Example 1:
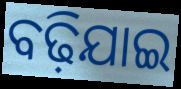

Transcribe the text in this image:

ବଢ଼ିଯାଇ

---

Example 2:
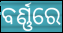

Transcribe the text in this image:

ବର୍ଣ୍ଣରେ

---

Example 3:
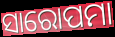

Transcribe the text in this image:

ସାରୋପମା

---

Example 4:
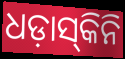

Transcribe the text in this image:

ଧଡ଼ାସ୍‌କିନି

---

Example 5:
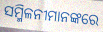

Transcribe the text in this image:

ସମ୍ମିଳନୀମାନଙ୍କରେ